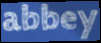
abbey